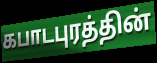
கபாடபுரத்தின்